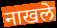
नाखले